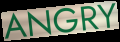
ANGRY